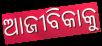
ଆଜୀବିକାକୁ